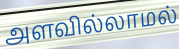
அளவில்லாமல்